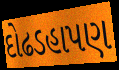
દોઢડહાપણ